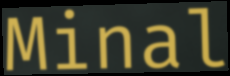
Minal